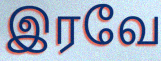
இரவே